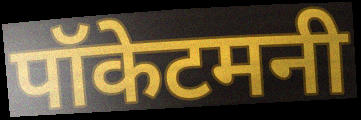
पॉकेटमनी